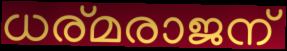
ധര്മരാജന്